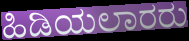
ಹಿಡಿಯಲಾರರು